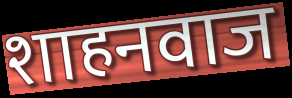
शाहनवाज